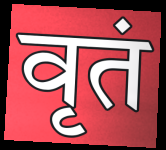
वृतं